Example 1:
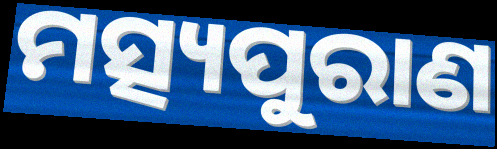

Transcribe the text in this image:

ମତ୍ସ୍ୟପୁରାଣ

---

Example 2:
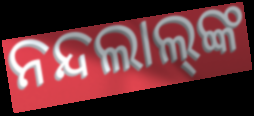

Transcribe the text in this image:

ନନ୍ଦଲାଲ୍‌ଙ୍କ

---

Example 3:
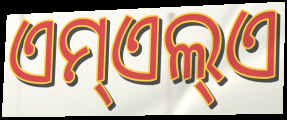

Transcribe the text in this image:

ଏମ୍ଏଲ୍ଏ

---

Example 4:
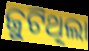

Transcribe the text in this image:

ଜୁଟିଥିଲା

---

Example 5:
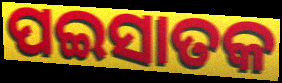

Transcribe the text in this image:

ପଇସାତକ